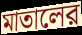
মাতালের